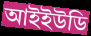
আইইউডি